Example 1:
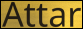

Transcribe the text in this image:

Attar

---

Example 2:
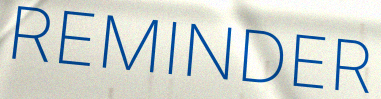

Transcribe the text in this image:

REMINDER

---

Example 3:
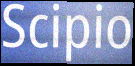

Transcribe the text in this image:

Scipio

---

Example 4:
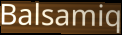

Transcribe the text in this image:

Balsamiq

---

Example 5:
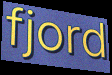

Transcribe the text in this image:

fjord